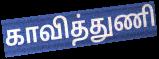
காவித்துணி